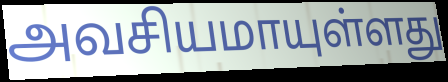
அவசியமாயுள்ளது